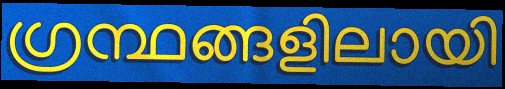
ഗ്രന്ഥങ്ങളിലായി